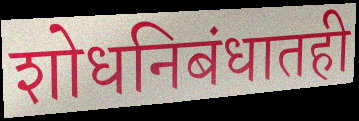
शोधनिबंधातही